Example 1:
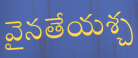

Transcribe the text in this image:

వైనతేయశ్చ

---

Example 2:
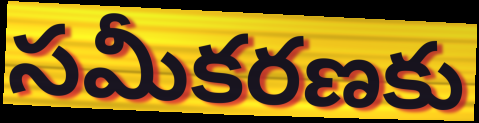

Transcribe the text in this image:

సమీకరణకు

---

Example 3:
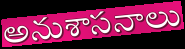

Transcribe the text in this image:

అనుశాసనాలు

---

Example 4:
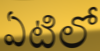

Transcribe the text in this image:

ఏటిలో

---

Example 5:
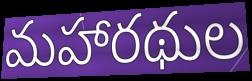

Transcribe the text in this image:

మహారథుల